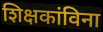
शिक्षकांविना